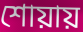
শোয়ায়